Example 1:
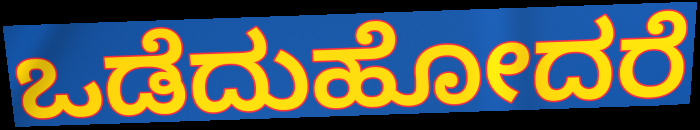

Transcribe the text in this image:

ಒಡೆದುಹೋದರೆ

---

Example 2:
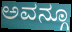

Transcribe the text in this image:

ಅವನ್ಗೂ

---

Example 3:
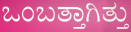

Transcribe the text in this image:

ಒಂಬತ್ತಾಗಿತ್ತು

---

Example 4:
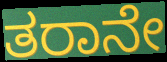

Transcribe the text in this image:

ತರಾನೇ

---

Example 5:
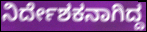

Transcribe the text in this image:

ನಿರ್ದೇಶಕನಾಗಿದ್ದ